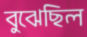
বুঝেছিল